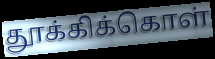
தூக்கிக்கொள்